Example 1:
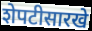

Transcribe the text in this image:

शेपटीसारखे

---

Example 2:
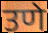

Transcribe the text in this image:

उणे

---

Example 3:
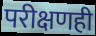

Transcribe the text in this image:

परीक्षणही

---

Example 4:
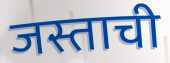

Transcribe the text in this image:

जस्ताची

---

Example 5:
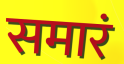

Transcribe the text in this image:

समारं